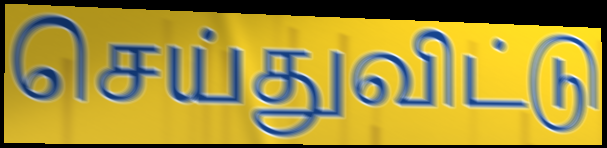
செய்துவிட்டு